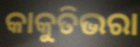
କାକୁତିଭରା